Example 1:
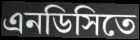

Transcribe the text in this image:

এনডিসিতে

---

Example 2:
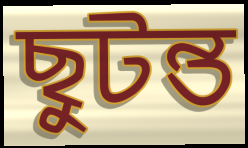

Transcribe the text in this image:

ছুটন্ত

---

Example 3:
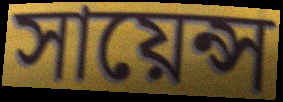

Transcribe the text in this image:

সায়েন্স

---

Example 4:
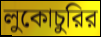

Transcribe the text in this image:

লুকোচুরির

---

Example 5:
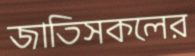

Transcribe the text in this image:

জাতিসকলের